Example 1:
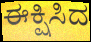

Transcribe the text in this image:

ಈಕ್ಷಿಸಿದ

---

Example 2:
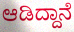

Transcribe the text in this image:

ಆಡಿದ್ದಾನೆ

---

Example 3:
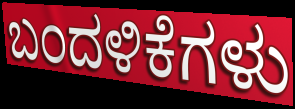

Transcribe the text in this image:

ಬಂದಳಿಕೆಗಳು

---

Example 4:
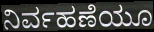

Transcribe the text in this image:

ನಿರ್ವಹಣೆಯೂ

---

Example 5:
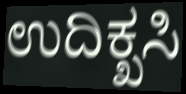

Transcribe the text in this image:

ಉದಿಕ್ಖಸಿ